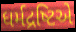
ધર્મદ્રષ્ટિએ